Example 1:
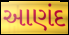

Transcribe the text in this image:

આણંદ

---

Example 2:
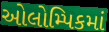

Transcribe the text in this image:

ઓલોમ્પિકમાં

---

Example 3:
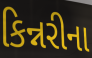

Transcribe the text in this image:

કિન્નરીના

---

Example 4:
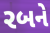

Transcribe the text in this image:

રબને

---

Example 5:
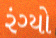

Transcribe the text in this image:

રંગ્યો